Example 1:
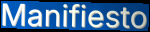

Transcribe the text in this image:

Manifiesto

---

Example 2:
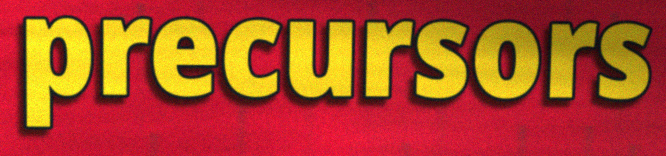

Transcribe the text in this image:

precursors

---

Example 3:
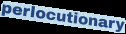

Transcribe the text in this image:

perlocutionary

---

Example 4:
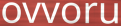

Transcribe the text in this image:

ovvoru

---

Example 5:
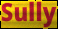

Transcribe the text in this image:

Sully